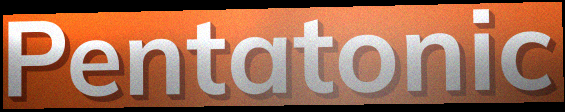
Pentatonic